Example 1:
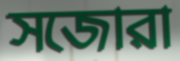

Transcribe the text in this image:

সজোৱা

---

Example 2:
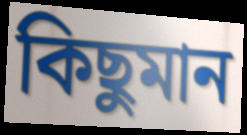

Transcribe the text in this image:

কিছুমান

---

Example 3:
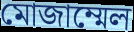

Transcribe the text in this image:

মোজাম্মেল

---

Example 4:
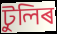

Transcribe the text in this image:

টুলিৰ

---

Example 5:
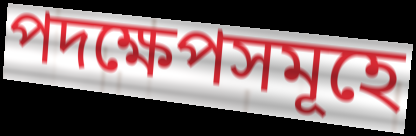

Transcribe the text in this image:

পদক্ষেপসমূহে